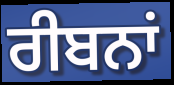
ਰੀਬਨਾਂ